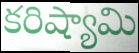
కరిష్యామి